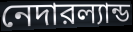
নেদারল্যান্ড